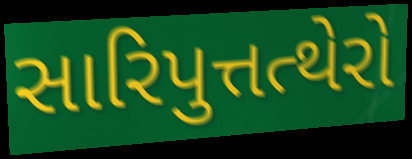
સારિપુત્તત્થેરો